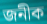
জনীক